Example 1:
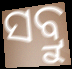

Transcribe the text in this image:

ସବ୍ରୁ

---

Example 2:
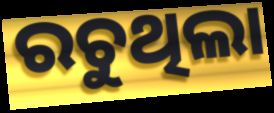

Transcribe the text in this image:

ରଚୁଥିଲା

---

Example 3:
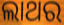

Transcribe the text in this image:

ଲାଥର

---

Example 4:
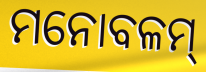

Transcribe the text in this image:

ମନୋବଳମ୍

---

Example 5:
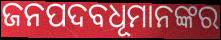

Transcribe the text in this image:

ଜନପଦବଧୂମାନଙ୍କର